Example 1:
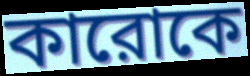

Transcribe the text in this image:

কারোকে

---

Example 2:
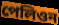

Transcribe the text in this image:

পেলিওন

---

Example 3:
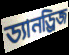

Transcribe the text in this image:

ড্যানড্রিজ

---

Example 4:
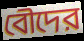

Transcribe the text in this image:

বৌদের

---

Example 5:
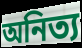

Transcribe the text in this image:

অনিত্য